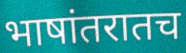
भाषांतरातच